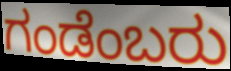
ಗಂಡೆಂಬರು